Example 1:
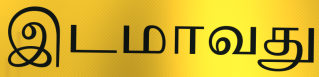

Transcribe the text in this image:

இடமாவது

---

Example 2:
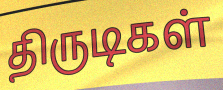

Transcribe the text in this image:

திருடிகள்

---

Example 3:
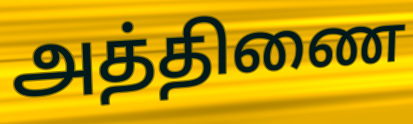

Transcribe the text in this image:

அத்திணை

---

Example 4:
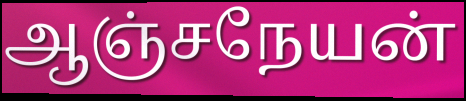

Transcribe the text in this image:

ஆஞ்சநேயன்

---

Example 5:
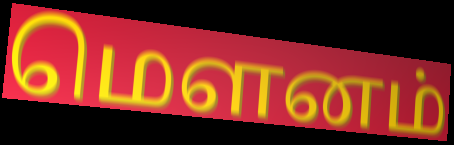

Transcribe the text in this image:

மௌனம்